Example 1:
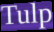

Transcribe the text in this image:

Tulp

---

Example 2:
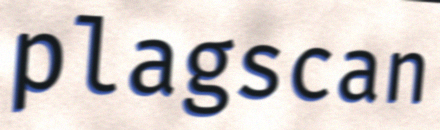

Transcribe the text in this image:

plagscan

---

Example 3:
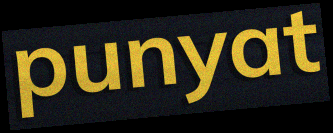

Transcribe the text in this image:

punyat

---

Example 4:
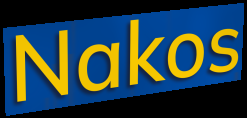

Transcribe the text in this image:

Nakos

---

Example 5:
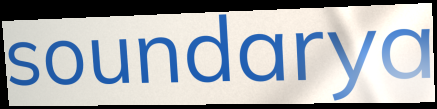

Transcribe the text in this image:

soundarya